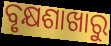
ବୃକ୍ଷଶାଖାରୁ